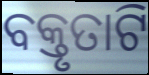
ବକ୍ତୃତାଟି